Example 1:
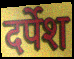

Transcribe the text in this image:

दर्पेश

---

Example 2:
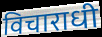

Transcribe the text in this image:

विचाराधी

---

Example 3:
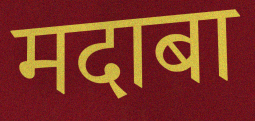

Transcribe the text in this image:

मदाबा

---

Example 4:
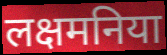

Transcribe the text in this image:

लक्षमनिया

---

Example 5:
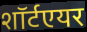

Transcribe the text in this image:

शॉर्टएयर